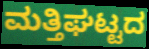
ಮತ್ತಿಘಟ್ಟದ